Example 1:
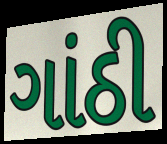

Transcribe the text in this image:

ગાંઠી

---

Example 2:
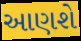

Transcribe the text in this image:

આણશે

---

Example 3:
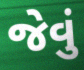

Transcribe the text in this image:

જેવું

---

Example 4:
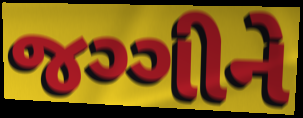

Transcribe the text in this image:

જગ્ગીને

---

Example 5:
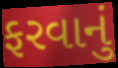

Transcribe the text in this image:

ફરવાનું